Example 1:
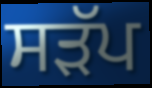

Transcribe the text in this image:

ਸੜੱਪ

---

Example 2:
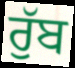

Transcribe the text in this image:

ਰੁੱਬ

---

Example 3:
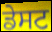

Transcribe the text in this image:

ਡੇਸਟ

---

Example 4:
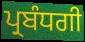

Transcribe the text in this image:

ਪ੍ਰਬੰਧਗੀ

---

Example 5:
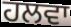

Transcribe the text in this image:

ਹਲਵਾ